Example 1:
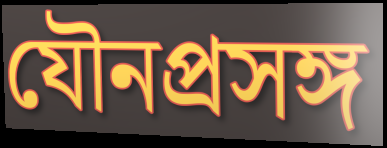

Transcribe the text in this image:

যৌনপ্রসঙ্গ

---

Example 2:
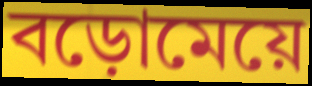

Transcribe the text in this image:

বড়োমেয়ে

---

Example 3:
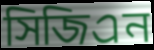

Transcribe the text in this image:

সিজিএন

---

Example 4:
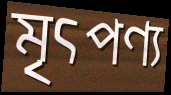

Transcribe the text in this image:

মৃৎপণ্য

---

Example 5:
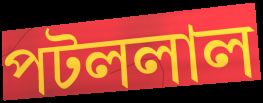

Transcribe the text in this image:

পটললাল